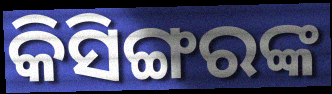
କିସିଙ୍ଗରଙ୍କ